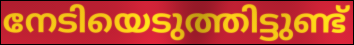
നേടിയെടുത്തിട്ടുണ്ട്